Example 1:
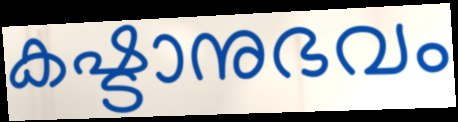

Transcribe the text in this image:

കഷ്ടാനുഭവം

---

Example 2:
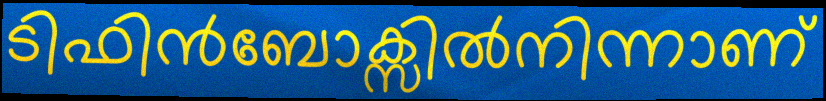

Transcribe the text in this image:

ടിഫിൻബോക്സിൽനിന്നാണ്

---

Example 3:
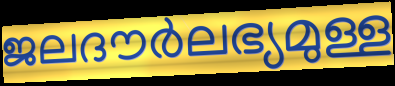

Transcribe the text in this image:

ജലദൗർലഭ്യമുള്ള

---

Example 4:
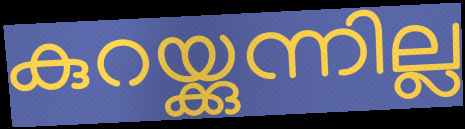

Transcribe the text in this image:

കുറയ്ക്കുന്നില്ല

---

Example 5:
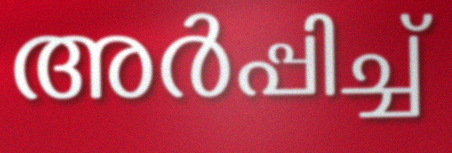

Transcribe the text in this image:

അർപ്പിച്ച്